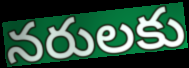
నరులకు